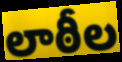
లాఠీల